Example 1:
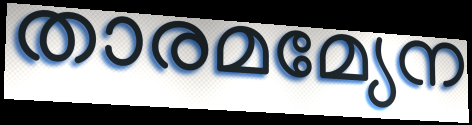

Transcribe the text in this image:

താരമമ്യേന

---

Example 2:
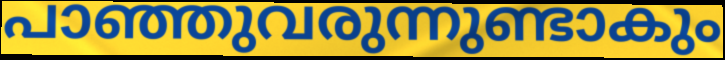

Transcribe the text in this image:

പാഞ്ഞുവരുന്നുണ്ടാകും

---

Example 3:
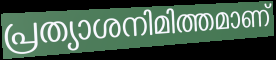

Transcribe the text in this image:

പ്രത്യാശനിമിത്തമാണ്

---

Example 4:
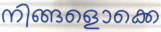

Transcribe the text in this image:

നിങ്ങളൊക്കെ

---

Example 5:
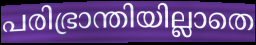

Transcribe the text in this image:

പരിഭ്രാന്തിയില്ലാതെ